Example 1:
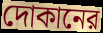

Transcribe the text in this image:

দোকানের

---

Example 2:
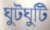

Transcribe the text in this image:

ঘুটঘুটি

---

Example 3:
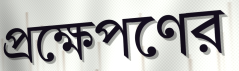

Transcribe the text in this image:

প্রক্ষেপণের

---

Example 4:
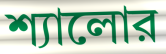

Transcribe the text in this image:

শ্যালোর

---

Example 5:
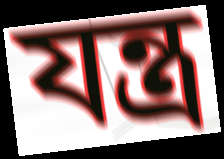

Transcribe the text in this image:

যন্ত্র